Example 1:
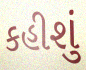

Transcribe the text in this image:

કહીશું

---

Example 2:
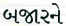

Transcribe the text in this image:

બજારને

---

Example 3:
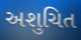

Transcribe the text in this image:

અશુચિત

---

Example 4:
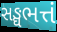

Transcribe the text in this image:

સઙ્ઘભત્તં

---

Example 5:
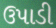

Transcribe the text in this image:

ઉપાડી